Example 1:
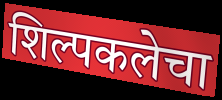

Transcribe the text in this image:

शिल्पकलेचा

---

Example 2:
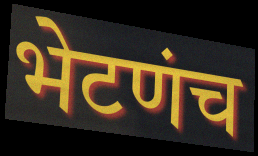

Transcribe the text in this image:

भेटणंच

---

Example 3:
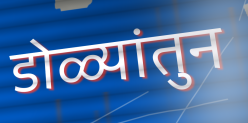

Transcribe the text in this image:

डोळ्यांतुन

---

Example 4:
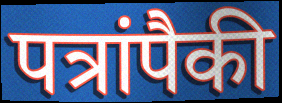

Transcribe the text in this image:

पत्रांपैकी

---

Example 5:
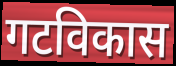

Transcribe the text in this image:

गटविकास